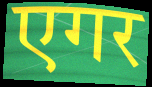
एगर